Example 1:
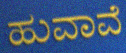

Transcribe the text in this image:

ಹುವಾವೆ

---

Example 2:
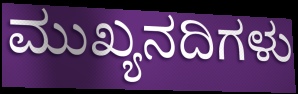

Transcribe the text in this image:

ಮುಖ್ಯನದಿಗಳು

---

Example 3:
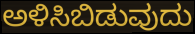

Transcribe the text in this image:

ಅಳಿಸಿಬಿಡುವುದು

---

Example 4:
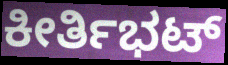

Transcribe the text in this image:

ಕೀರ್ತಿಭಟ್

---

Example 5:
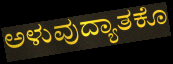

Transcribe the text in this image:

ಅಳುವುದ್ಯಾತಕೊ